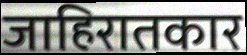
जाहिरातकार